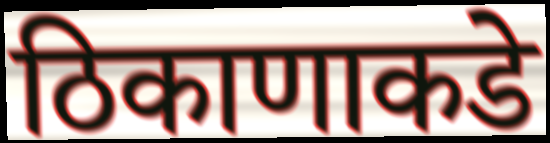
ठिकाणाकडे